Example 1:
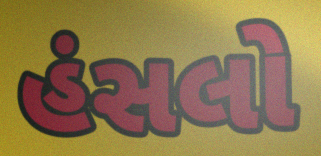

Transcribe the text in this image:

હંસલો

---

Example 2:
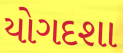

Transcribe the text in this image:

યોગદશા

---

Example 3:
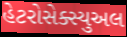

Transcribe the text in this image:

હેટરોસેક્સ્યુઅલ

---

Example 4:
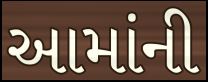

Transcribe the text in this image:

આમાંની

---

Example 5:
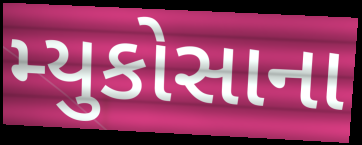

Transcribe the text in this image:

મ્યુકોસાના